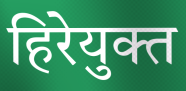
हिरेयुक्त